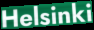
Helsinki